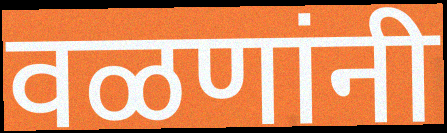
वळणांनी